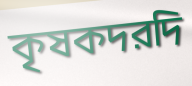
কৃষকদরদি